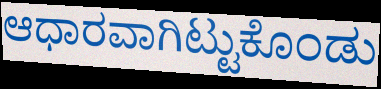
ಆಧಾರವಾಗಿಟ್ಟುಕೊಂಡು